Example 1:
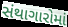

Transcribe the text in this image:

સંથાગારોમાં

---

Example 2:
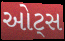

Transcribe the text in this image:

ઓટ્સ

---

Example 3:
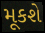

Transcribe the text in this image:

મૂકશે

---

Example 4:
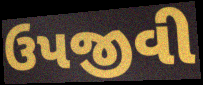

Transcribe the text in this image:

ઉપજીવી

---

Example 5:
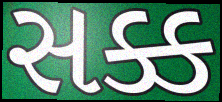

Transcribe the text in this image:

સક્ક